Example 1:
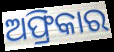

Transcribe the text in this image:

ଅଫ୍ରିକାର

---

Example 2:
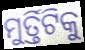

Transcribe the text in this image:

ମୁର୍ତ୍ତିଟିକୁ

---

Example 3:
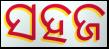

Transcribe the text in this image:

ସହଜ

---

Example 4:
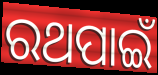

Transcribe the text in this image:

ରଥପାଇଁ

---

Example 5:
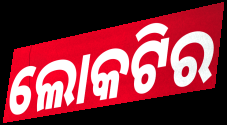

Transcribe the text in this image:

ଲୋକଟିର